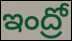
ఇంద్రో